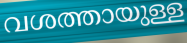
വശത്തായുള്ള